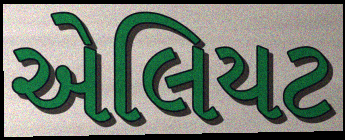
એલિયટ